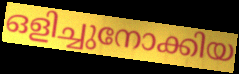
ഒളിച്ചുനോക്കിയ